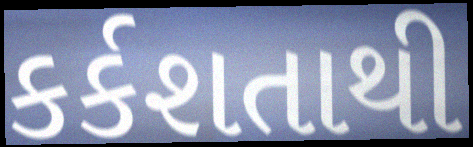
કર્કશતાથી